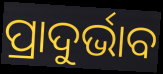
ପ୍ରାଦୁର୍ଭାବ